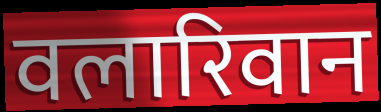
वलारिवान